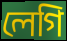
লেগি